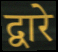
द्वारे